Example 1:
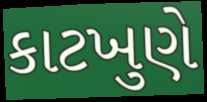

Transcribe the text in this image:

કાટખુણે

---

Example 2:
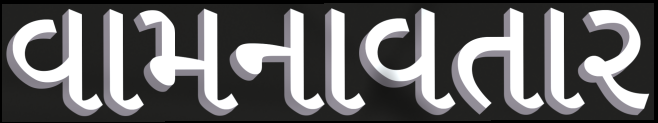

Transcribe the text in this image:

વામનાવતાર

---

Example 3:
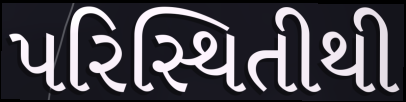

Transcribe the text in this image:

પરિસ્થિતીથી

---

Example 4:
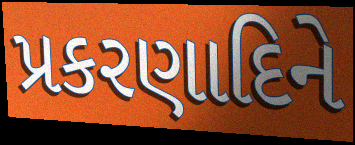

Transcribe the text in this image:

પ્રકરણાદિને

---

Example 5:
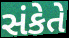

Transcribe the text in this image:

સંકેતે